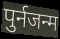
पुर्नजन्म